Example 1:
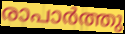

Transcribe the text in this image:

രാപാർത്തു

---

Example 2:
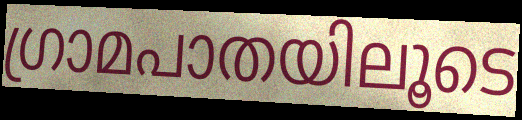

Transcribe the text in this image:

ഗ്രാമപാതയിലൂടെ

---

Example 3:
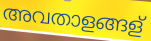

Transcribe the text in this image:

അവതാളങ്ങള്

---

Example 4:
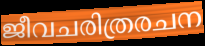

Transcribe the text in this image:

ജീവചരിത്രരചന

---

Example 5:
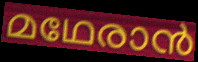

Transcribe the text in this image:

മഥേരാൻ